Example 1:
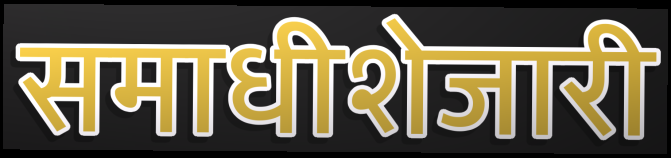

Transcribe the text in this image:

समाधीशेजारी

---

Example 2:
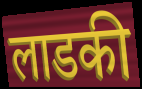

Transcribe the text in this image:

लाडकी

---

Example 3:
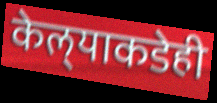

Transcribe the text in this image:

केल्याकडेही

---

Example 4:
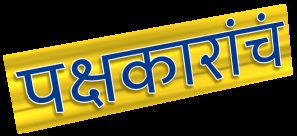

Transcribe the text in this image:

पक्षकारांचं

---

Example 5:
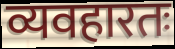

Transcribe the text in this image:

व्यवहारतः